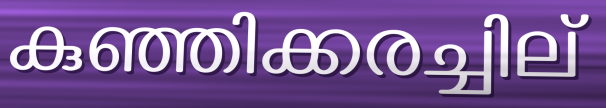
കുഞ്ഞിക്കരച്ചില്